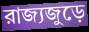
রাজ্যজুড়ে